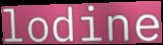
lodine